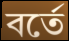
বর্তে